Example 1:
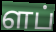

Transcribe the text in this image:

ளப்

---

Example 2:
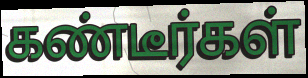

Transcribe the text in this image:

கண்டீர்கள்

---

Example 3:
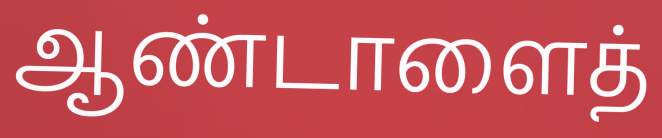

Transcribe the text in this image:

ஆண்டாளைத்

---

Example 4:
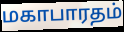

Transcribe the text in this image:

மகாபாரதம்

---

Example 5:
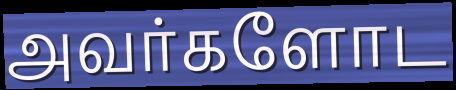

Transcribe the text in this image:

அவர்களோட